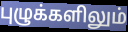
புழுக்களிலும்